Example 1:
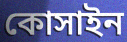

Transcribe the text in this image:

কোসাইন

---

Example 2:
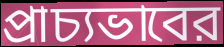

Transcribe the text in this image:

প্রাচ্যভাবের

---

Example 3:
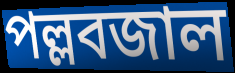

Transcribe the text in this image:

পল্লবজাল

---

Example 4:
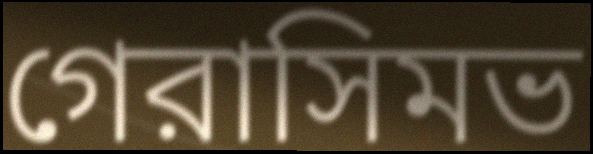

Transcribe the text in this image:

গেরাসিমভ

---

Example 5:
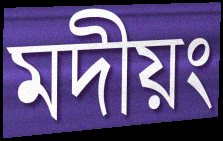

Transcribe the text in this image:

মদীয়ং